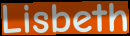
Lisbeth